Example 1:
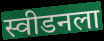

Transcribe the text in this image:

स्वीडनला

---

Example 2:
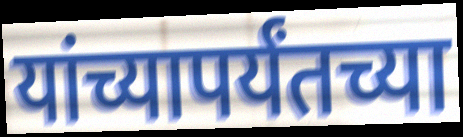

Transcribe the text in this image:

यांच्यापर्यंतच्या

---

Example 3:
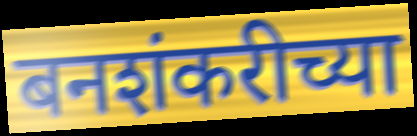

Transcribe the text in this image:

बनशंकरीच्या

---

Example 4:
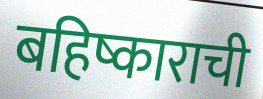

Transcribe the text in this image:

बहिष्काराची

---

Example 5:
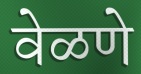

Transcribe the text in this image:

वेळणे